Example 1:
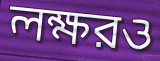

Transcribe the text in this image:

লক্ষরও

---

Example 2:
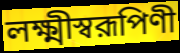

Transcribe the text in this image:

লক্ষ্মীস্বরূপিণী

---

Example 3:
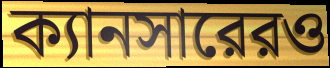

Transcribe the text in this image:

ক্যানসারেরও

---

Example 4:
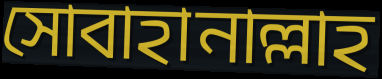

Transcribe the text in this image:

সোবাহানাল্লাহ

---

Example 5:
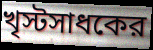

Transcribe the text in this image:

খৃস্টসাধকের